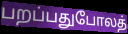
பறப்பதுபோலத்